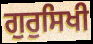
ਗੁਰੁਸਿਖੀ